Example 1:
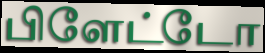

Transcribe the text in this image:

பிளேட்டோ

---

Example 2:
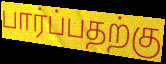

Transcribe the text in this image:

பார்ப்பதற்கு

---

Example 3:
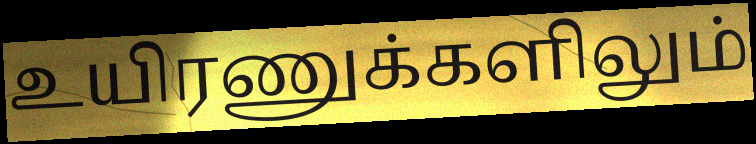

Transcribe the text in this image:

உயிரணுக்களிலும்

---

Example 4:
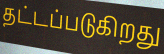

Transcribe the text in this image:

தட்டப்படுகிறது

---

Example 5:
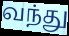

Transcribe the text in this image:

வந்து